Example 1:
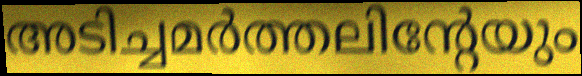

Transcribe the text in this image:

അടിച്ചമർത്തലിന്റേയും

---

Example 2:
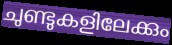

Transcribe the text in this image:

ചുണ്ടുകളിലേക്കും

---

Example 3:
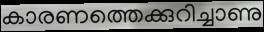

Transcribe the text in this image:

കാരണത്തെക്കുറിച്ചാണു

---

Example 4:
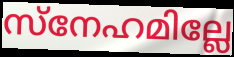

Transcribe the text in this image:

സ്നേഹമില്ലേ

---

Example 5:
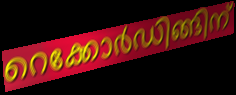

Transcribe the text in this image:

റെക്കോർഡിങ്ങിന്